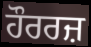
ਹੌਰਰਜ਼